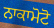
ਨਾਕਾਮੋਟੋ